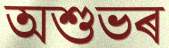
অশুভৰ